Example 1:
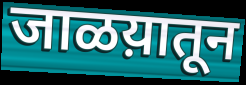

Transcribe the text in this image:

जाळय़ातून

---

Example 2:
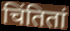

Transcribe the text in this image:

चिंतितां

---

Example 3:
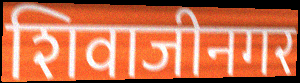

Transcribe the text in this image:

शिवाजीनगर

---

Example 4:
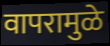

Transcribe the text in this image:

वापरामुळे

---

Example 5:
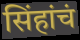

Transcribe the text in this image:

सिंहांचं